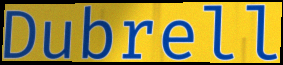
Dubrell